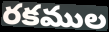
రకముల